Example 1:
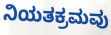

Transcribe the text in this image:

ನಿಯತಕ್ರಮವು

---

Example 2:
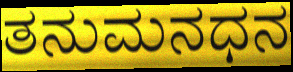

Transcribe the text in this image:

ತನುಮನಧನ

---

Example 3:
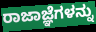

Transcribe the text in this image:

ರಾಜಾಜ್ಞೆಗಳನ್ನು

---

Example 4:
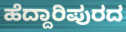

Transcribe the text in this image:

ಹೆದ್ದಾರಿಪುರದ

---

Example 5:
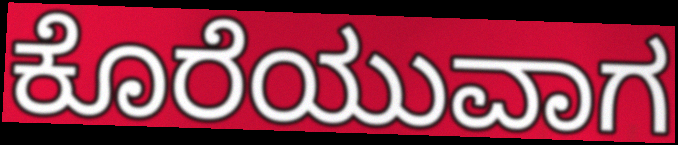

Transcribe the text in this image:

ಕೊರೆಯುವಾಗ